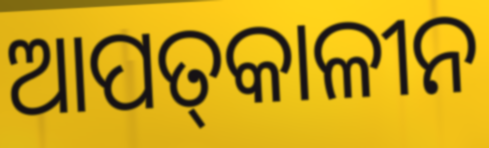
ଆପତ୍‌କାଳୀନ